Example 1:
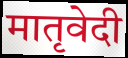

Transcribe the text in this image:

मातृवेदी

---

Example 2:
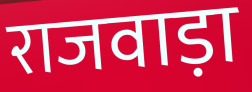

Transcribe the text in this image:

राजवाड़ा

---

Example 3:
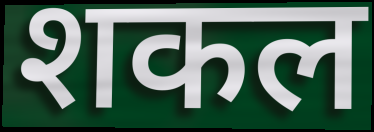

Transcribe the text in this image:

शकल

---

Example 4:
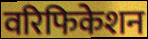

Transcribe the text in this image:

वरिफिकेशन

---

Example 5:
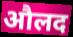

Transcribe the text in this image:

औलद